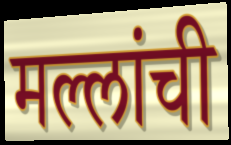
मल्लांची